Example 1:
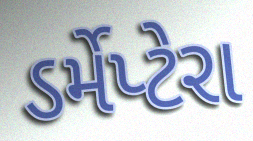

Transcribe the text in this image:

ડર્મેપ્ટેરા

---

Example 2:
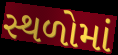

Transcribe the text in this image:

સ્‍થળોમાં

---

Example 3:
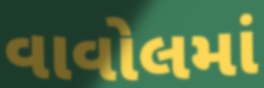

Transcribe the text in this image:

વાવોલમાં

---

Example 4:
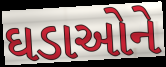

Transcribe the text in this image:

ઘડાઓને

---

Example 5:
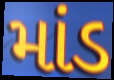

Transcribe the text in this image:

માંડ